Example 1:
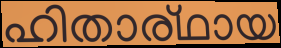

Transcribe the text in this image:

ഹിതാര്ഥായ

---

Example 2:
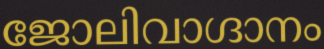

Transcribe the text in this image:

ജോലിവാഗ്ദാനം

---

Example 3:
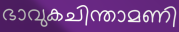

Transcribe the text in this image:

ഭാവുകചിന്താമണി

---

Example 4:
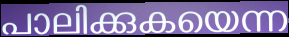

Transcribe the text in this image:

പാലിക്കുകയെന്ന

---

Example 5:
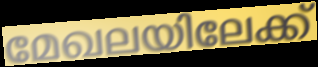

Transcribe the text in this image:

മേഖലയിലേക്ക്